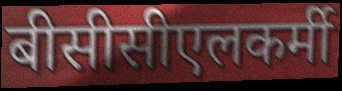
बीसीसीएलकर्मी